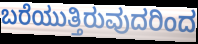
ಬರೆಯುತ್ತಿರುವುದರಿಂದ